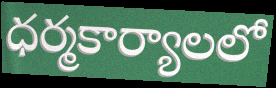
ధర్మకార్యాలలో